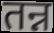
तन्न